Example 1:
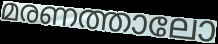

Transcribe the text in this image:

മരണത്താലോ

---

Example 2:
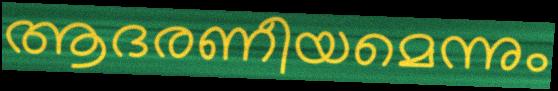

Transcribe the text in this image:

ആദരണീയമെന്നും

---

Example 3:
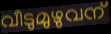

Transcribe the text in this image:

വീടുമുഴുവന്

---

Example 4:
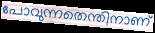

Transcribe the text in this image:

പോവുന്നതെന്തിനാണ്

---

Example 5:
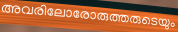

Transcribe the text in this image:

അവരിലോരോരുത്തരുടെയും